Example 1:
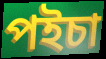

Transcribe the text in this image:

পইচা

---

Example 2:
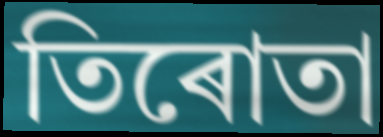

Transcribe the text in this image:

তিৰোতা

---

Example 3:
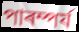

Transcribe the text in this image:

পাৰম্পৰ্য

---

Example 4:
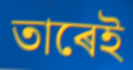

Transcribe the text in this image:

তাৰেই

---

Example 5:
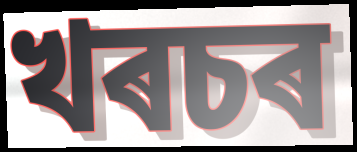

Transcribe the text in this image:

খৰচৰ